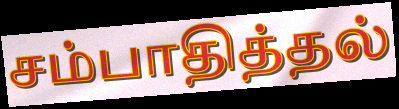
சம்பாதித்தல்